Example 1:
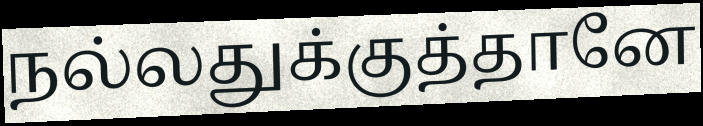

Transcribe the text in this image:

நல்லதுக்குத்தானே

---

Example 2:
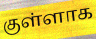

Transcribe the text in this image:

குள்ளாக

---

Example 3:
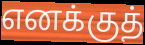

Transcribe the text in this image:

எனக்குத்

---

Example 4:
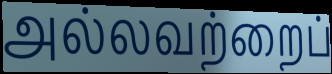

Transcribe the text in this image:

அல்லவற்றைப்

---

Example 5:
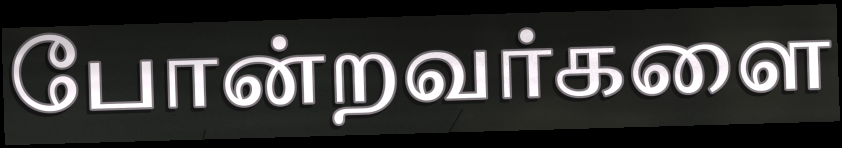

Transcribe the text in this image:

போன்றவர்களை